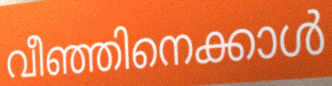
വീഞ്ഞിനെക്കാൾ